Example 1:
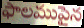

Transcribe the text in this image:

ఫాలముపైన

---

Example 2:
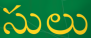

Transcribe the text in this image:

సులు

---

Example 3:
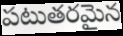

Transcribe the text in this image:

పటుతరమైన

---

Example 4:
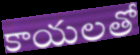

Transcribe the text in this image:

కాయలతో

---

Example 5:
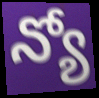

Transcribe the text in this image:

న్యో